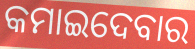
କମାଇଦେବାର